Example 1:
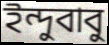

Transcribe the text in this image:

ইন্দুবাবু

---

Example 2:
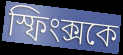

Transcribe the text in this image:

স্ফিংক্সকে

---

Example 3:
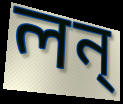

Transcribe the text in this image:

লন্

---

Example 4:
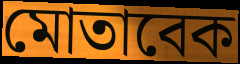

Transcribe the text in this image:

মোতাবেক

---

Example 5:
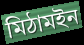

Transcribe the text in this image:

মিঠামইন